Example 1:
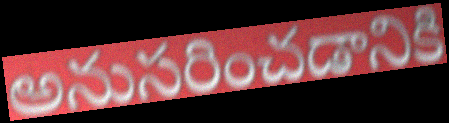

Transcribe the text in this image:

అనుసరించడానికి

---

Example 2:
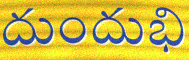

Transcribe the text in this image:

దుందుభి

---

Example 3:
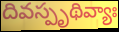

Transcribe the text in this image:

దివస్పృథివ్యాః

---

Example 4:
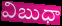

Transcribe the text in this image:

విబుధా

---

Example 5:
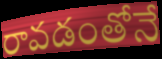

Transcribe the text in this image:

రావడంతోనే